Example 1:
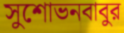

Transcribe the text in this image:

সুশোভনবাবুর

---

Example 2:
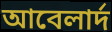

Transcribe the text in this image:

আবেলার্দ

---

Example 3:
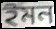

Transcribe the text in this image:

ইমন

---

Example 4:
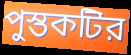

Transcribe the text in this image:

পুস্তকটির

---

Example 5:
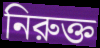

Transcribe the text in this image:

নিরুক্ত